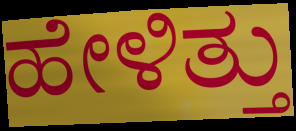
ಹೇಳಿತ್ತು